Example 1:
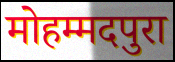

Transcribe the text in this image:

मोहम्मदपुरा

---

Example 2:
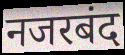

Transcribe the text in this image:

नजरबंद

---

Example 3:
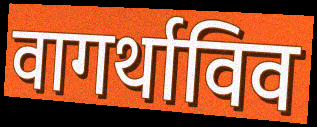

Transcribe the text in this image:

वागर्थाविव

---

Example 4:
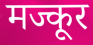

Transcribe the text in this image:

मज्कूर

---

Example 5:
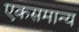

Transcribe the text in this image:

एकसमान्य